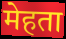
मेहता